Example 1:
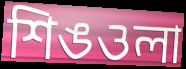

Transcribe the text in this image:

শিঙওলা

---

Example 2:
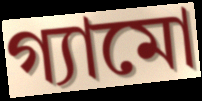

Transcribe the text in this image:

গ্যামো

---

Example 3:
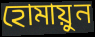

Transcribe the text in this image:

হোমায়ুন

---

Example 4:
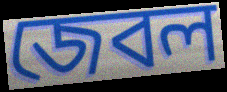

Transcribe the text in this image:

জেবল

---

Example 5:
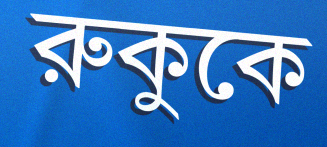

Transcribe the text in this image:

রুকুকে